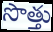
సొత్తు